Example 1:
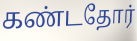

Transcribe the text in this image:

கண்டதோர்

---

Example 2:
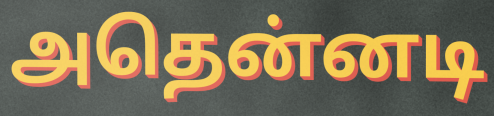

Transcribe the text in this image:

அதென்னடி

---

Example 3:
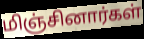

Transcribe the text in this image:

மிஞ்சினார்கள்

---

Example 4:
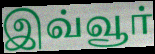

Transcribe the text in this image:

இவ்வூர்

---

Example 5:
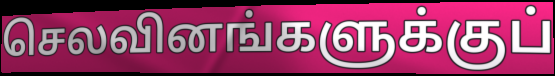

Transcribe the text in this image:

செலவினங்களுக்குப்